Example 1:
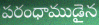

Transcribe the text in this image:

పరంధాముడైన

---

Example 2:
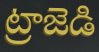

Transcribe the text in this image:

ట్రాజెడి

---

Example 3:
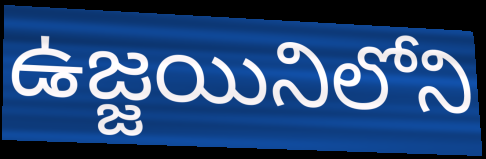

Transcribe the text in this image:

ఉజ్జయినిలోని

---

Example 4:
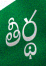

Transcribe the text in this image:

తీర్థ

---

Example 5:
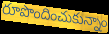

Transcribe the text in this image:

రూపొందించుకున్నాం